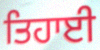
ਤਿਹਾਈ